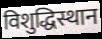
विशुद्धिस्थान